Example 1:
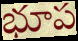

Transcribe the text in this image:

భూప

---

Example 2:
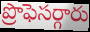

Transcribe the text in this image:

ప్రొఫెసర్గారు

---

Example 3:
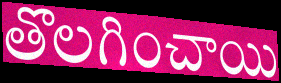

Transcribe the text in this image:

తొలగించాయి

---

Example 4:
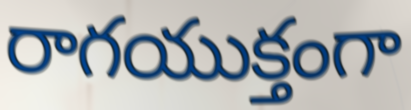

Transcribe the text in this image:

రాగయుక్తంగా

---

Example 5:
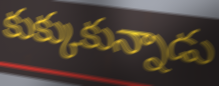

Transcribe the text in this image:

కుక్కుకున్నాడు